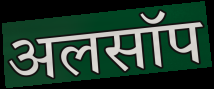
अलसॉप